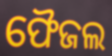
ଫୈଜଲ